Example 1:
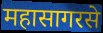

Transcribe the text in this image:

महासागरसे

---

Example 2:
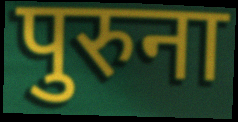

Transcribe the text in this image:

पुरुना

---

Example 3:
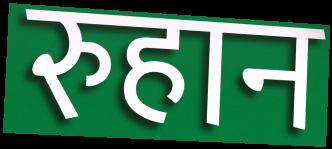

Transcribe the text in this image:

रुहान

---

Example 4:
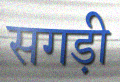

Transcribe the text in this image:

सगड़ी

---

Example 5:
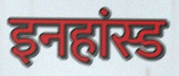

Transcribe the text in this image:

इनहांस्ड